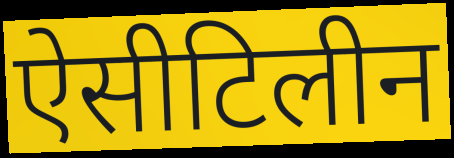
ऐसीटिलीन